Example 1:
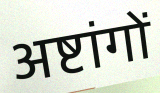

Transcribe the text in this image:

अष्टांगों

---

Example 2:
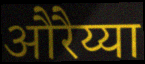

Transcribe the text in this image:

औरैय्या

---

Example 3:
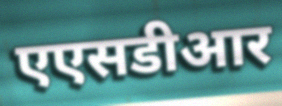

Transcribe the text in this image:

एएसडीआर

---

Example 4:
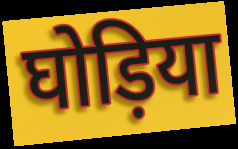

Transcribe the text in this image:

घोड़िया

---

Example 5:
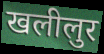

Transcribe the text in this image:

खलीलुर